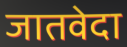
जातवेदा